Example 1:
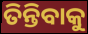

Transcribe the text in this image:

ତିନ୍ତିବାକୁ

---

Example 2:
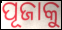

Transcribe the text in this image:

ପୂଜାକୁ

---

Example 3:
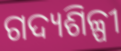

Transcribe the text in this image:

ଗଦ୍ୟଶିଳ୍ପୀ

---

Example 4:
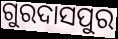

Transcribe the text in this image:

ଗୁରଦାସପୁର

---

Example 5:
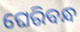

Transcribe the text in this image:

ଘେରିବନ୍ଧ